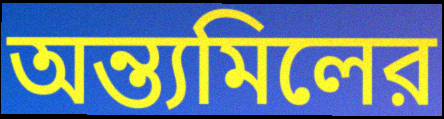
অন্ত্যমিলের